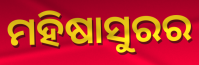
ମହିଷାସୁରର